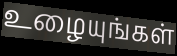
உழையுங்கள்